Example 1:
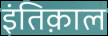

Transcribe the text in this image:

इंतिक़ाल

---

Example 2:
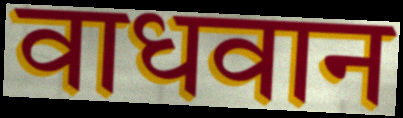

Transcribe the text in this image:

वाधवान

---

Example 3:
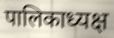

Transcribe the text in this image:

पालिकाध्यक्ष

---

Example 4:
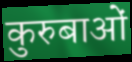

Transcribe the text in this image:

कुरुबाओं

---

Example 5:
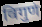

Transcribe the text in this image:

विगुणं